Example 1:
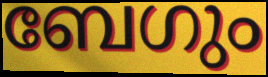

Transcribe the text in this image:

ബേഗും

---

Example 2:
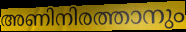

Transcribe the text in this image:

അണിനിരത്താനും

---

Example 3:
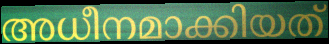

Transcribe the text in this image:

അധീനമാക്കിയത്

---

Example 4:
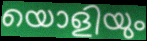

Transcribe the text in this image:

യൊളിയും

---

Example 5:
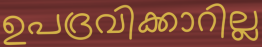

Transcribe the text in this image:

ഉപദ്രവിക്കാറില്ല